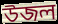
উজল